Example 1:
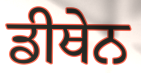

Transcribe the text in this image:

ਡੀਥੇਨ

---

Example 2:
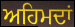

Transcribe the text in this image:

ਅਹਿਮਦਾਂ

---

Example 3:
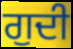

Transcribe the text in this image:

ਗੁਦੀ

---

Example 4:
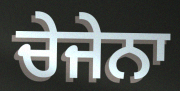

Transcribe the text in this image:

ਚੇਜੇਨਾ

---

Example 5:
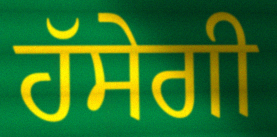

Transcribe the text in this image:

ਹੱਸੇਗੀ